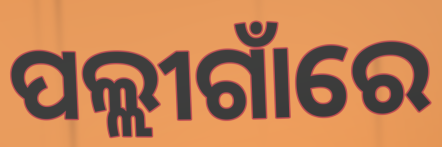
ପଲ୍ଲୀଗାଁରେ